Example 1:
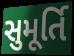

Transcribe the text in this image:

સુમૂર્તિ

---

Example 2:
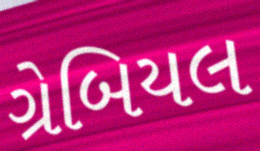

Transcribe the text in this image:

ગ્રેબિયલ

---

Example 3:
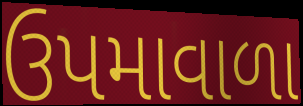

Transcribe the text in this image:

ઉપમાવાળા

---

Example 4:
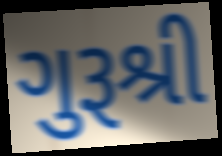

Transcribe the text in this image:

ગુરૂશ્રી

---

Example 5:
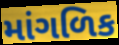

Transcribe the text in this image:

માંગળિક